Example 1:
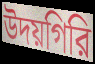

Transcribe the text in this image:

উদয়গিরি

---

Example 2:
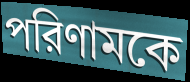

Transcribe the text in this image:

পরিণামকে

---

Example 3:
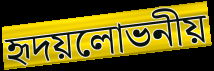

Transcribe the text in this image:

হৃদয়লোভনীয়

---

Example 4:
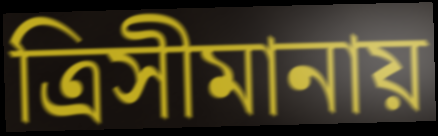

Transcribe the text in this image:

ত্রিসীমানায়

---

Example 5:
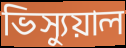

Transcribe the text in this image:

ভিস্যুয়াল